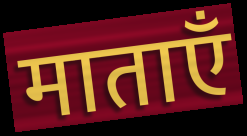
माताएँ